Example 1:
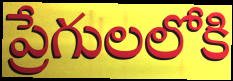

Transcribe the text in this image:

ప్రేగులలోకి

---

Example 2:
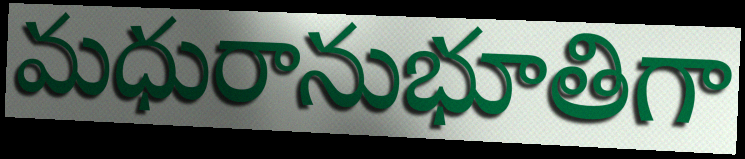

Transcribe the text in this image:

మధురానుభూతిగా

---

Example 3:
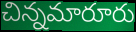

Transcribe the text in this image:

చిన్నమారూరు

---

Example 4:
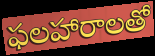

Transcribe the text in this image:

ఫలహారాలతో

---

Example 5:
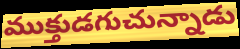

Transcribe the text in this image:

ముక్తుడగుచున్నాడు